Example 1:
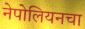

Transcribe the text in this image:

नेपोलियनचा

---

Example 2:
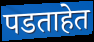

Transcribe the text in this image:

पडताहेत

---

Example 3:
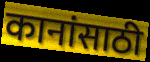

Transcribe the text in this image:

कानांसाठी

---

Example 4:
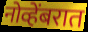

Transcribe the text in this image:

नोव्हेंबरात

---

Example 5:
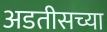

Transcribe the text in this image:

अडतीसच्या